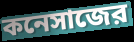
কনেসাজের